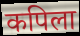
कपिला